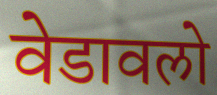
वेडावलो